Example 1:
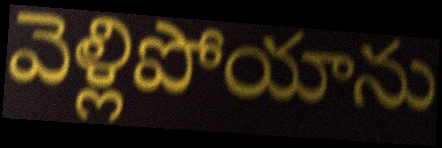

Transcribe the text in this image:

వెళ్లిపోయాను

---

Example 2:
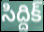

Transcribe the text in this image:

సిద్దిక్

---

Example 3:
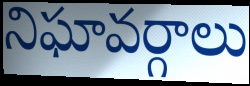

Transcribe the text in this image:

నిఘావర్గాలు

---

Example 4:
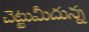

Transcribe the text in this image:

చెట్టుమీదున్న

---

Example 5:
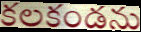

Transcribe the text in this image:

కలకండను